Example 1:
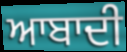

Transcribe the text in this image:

ਆਬਾਦੀ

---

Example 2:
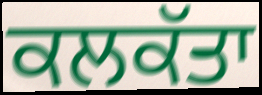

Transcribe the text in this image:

ਕਲਕੱਤਾ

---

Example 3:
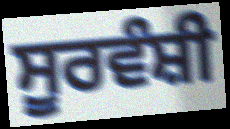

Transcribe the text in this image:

ਸੂਰਵੰਸ਼ੀ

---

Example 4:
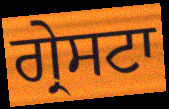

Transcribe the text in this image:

ਗ੍ਰੇਸਟਾ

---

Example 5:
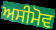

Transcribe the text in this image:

ਅਸੀਮੋਵ